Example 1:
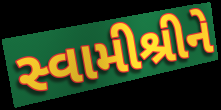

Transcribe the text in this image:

સ્વામીશ્રીને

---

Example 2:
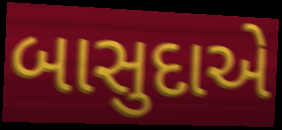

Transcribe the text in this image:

બાસુદાએ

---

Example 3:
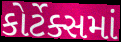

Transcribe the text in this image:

કોર્ટેક્સમાં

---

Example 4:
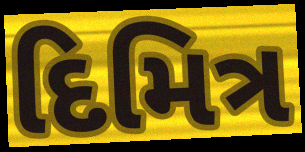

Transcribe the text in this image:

દિમિત્ર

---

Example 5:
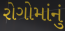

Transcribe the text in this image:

રોગોમાંનું